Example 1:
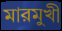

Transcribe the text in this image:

মারমুখী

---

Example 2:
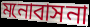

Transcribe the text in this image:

মনোবাসনা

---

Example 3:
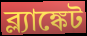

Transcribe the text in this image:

ব্ল্যাঙ্কেট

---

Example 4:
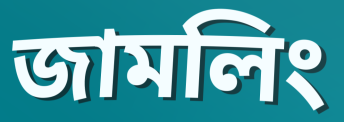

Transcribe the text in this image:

জামলিং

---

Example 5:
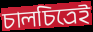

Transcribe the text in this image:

চালচিত্রেই